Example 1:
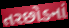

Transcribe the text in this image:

તરછોડનાં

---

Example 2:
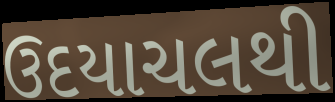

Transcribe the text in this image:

ઉદયાચલથી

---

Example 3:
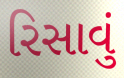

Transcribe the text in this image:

રિસાવું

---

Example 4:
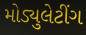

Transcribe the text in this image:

મોડ્યુલેટીંગ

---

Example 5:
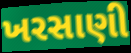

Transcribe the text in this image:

ખરસાણી